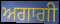
ਅਗਾਗੀ